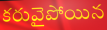
కరువైపోయిన